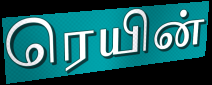
ரெயின்